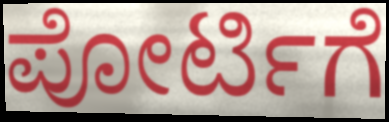
ಪೋರ್ಟಿಗೆ